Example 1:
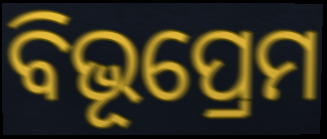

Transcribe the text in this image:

ବିଭୂପ୍ରେମ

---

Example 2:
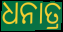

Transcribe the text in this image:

ଧନାତ୍ର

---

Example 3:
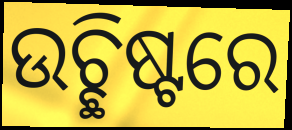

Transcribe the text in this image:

ଉଚ୍ଛିଷ୍ଟରେ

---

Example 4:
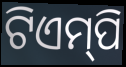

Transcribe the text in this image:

ଟିଏମ୍‌ପି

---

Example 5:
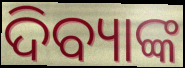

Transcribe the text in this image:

ଦିବ୍ୟାଙ୍କ